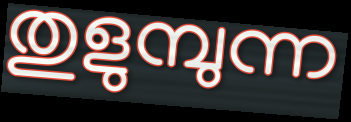
തുളുമ്പുന്ന